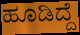
ಹೂಡಿದ್ದೆ